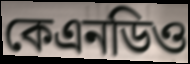
কেএনডিও